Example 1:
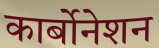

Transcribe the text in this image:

कार्बोनेशन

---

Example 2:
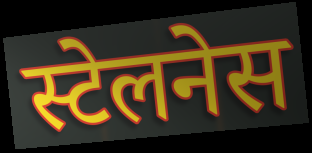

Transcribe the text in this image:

स्टेलनेस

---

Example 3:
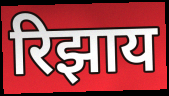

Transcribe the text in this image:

रिझाय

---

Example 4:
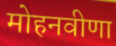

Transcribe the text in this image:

मोहनवीणा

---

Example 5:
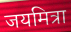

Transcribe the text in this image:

जयमित्रा